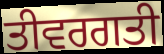
ਤੀਵਰਗਤੀ